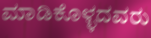
ಮಾಡಿಕೊಳ್ಳದವರು